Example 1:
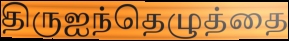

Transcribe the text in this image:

திருஐந்தெழுத்தை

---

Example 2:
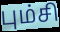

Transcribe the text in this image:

பும்சி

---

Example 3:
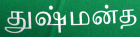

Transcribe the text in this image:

துஷ்மன்த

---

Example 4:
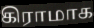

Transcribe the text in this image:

கிராமாக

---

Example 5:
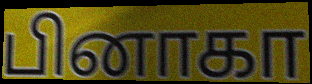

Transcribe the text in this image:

பினாகா